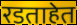
रडताहेत